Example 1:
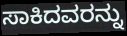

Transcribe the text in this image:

ಸಾಕಿದವರನ್ನು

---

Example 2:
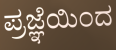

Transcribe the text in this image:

ಪ್ರಜ್ಞೆಯಿಂದ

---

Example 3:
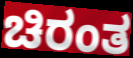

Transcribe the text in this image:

ಚಿರಂತ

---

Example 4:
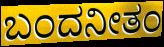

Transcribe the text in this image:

ಬಂದನೀತಂ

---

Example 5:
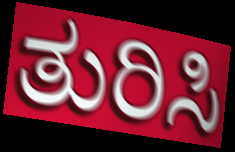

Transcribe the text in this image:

ತುರಿಸಿ